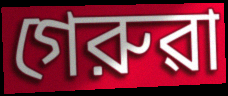
গেৰুৱা